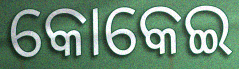
କୋକେଇ